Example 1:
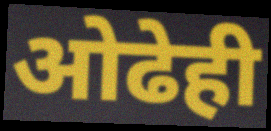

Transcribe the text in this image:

ओढेही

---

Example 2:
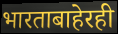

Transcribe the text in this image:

भारताबाहेरही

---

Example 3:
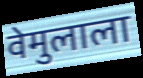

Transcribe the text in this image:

वेमुलाला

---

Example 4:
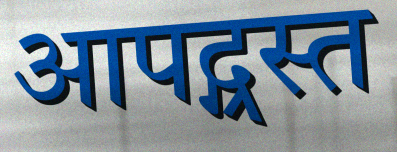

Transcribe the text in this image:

आपद्ग्रस्त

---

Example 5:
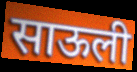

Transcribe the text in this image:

साऊली